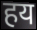
हय